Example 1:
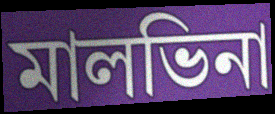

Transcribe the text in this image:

মালভিনা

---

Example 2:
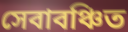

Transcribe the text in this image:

সেবাবঞ্চিত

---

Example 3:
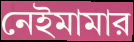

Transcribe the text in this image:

নেইমামার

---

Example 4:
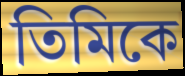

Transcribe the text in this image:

তিমিকে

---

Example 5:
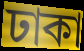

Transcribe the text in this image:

ঢাকা